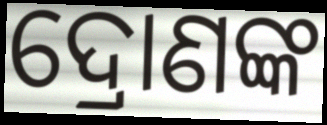
ଦ୍ରୋଣଙ୍କ